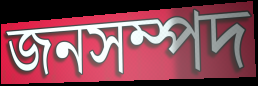
জনসম্পদ